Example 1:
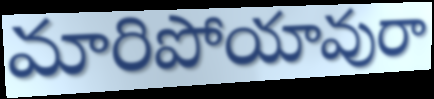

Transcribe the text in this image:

మారిపోయావురా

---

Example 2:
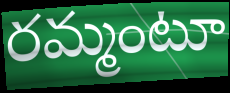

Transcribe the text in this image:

రమ్మంటూ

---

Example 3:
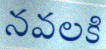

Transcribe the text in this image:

నవలకి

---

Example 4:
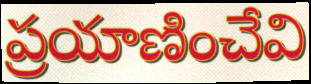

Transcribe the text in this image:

ప్రయాణించేవి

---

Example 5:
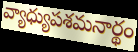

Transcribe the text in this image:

వ్యాధ్యుపశమనార్థం